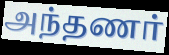
அந்தணர்